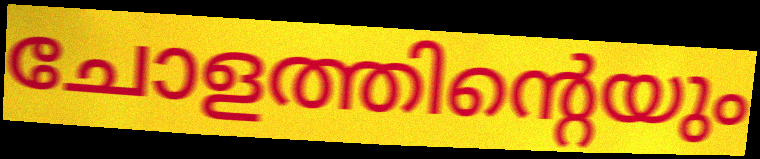
ചോളത്തിന്റെയും